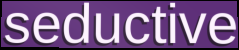
seductive